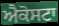
ਐਕੋਸਟਾ